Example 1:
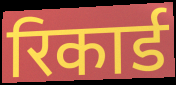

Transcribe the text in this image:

रिकार्ड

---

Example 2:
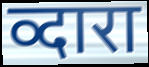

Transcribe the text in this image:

व्दारा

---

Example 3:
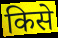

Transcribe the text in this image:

किसे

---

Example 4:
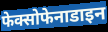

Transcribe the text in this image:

फेक्सोफेनाडाइन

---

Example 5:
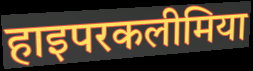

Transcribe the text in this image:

हाइपरकलीमिया